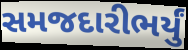
સમજદારીભર્યું